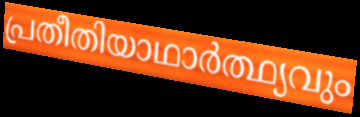
പ്രതീതിയാഥാർത്ഥ്യവും